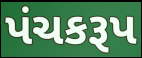
પંચકરૂપ